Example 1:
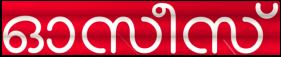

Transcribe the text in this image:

ഓസീസ്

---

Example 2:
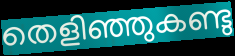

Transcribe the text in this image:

തെളിഞ്ഞുകണ്ടു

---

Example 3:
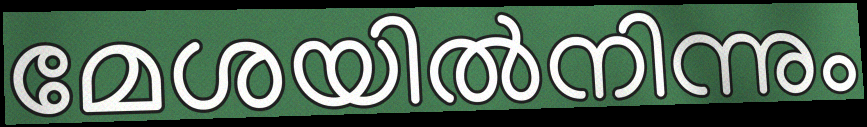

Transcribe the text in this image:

മേശയിൽനിന്നും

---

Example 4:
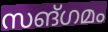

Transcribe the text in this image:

സങ്ഗമം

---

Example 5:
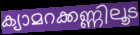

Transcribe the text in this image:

ക്യാമറക്കണ്ണിലൂട